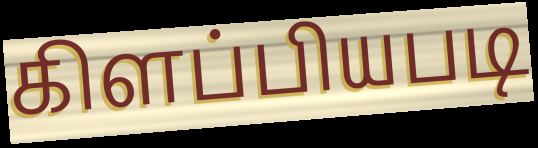
கிளப்பியபடி